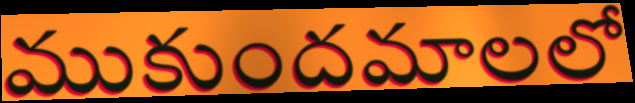
ముకుందమాలలో